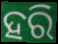
ହରି